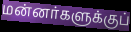
மன்னர்களுக்குப்